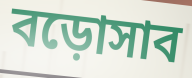
বড়োসাব